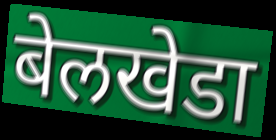
बेलखेडा